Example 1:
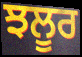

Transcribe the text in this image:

ਝਲੂਰ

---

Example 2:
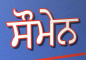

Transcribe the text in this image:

ਸੌਮੇਨ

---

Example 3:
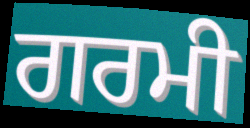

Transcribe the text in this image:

ਗਰਮੀ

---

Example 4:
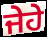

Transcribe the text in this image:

ਜੇਹੇ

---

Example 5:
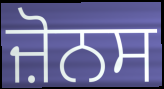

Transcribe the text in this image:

ਜ਼ੋਨਸ